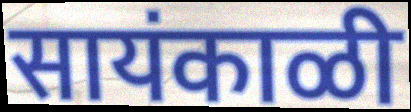
सायंकाळी